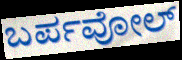
ಬರ್ಪವೋಲ್